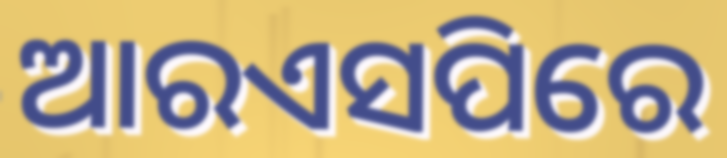
ଆରଏସପିରେ